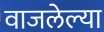
वाजलेल्या